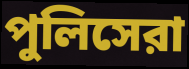
পুলিসেরা